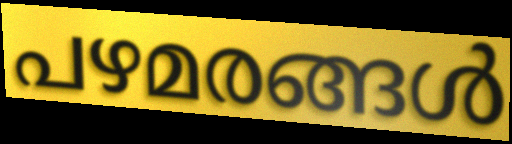
പഴമരങ്ങൾ